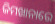
ଜିମଖାନାରେ